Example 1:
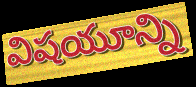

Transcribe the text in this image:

విషయూన్ని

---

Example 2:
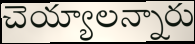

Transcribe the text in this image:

చెయ్యాలన్నారు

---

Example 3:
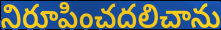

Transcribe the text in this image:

నిరూపించదలిచాను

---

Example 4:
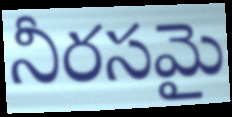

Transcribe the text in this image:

నీరసమై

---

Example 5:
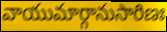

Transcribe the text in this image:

వాయుమార్గానుసారిణః